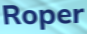
Roper